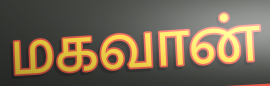
மகவான்